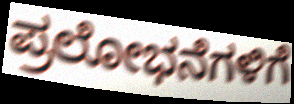
ಪ್ರಲೋಭನೆಗಳಿಗೆ